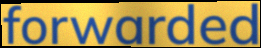
forwarded